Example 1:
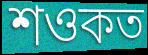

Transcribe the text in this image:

শওকত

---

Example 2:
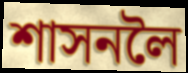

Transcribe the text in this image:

শাসনলৈ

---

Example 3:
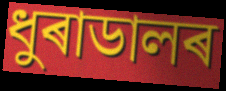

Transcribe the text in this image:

ধুৰাডালৰ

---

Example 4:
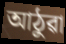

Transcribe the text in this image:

আঠুৱা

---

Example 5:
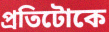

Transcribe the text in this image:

প্ৰতিটোকে